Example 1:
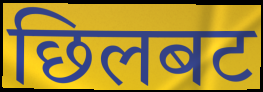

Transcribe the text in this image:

छिलबट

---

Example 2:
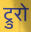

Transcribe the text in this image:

ट्रुरो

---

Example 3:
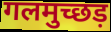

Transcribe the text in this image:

गलमुच्छड़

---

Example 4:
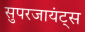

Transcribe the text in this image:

सुपरजायंट्स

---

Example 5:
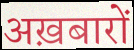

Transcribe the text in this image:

अख़बारों